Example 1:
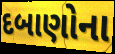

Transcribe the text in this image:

દબાણોના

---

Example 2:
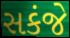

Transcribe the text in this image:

સકંજે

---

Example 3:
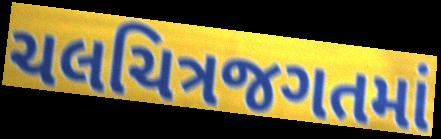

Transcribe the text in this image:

ચલચિત્રજગતમાં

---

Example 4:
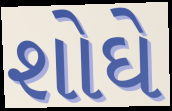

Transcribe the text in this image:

શોઘે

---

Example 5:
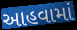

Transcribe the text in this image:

આહવામાં